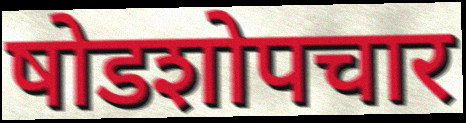
षोडशोपचार